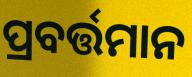
ପ୍ରବର୍ତ୍ତମାନ